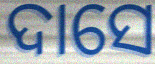
ଦାସେ